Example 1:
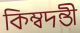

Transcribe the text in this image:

কিম্বদন্তী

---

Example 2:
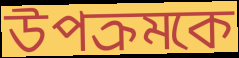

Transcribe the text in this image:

উপক্রমকে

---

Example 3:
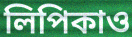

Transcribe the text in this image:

লিপিকাও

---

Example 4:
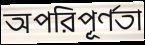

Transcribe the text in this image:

অপরিপূর্ণতা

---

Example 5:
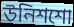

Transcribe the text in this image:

উনিশশো